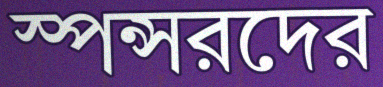
স্পন্সরদের